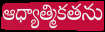
ఆధ్యాత్మికతను